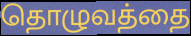
தொழுவத்தை